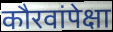
कौरवांपेक्षा